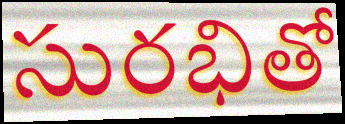
సురభితో